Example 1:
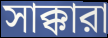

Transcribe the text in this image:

সাক্কারা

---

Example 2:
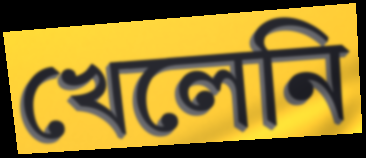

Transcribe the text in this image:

খেলেনি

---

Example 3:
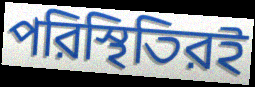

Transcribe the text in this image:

পরিস্থিতিরই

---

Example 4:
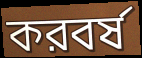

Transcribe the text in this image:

করবর্ষ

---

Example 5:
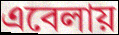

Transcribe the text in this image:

এবেলায়